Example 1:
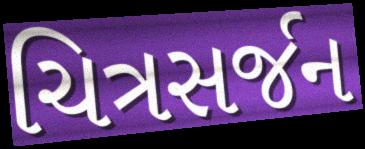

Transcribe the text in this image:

ચિત્રસર્જન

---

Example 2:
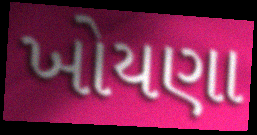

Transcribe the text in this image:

ખોયણા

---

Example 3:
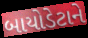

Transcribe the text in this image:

બાયોડેટાને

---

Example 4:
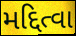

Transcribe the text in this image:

મદ્દિત્વા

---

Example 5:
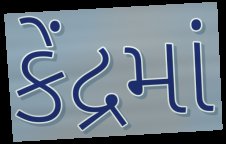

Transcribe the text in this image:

કેંદ્રમાં